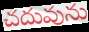
చదువును